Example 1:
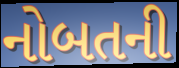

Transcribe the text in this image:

નોબતની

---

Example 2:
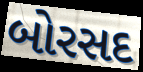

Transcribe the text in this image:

બોરસદ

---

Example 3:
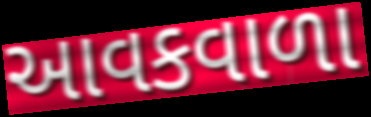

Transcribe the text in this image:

આવકવાળા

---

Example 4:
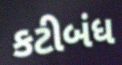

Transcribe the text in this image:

કટીબંધ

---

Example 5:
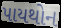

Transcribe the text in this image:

પાયથોન